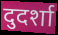
दुदर्शा